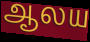
ஆலய